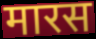
मारस